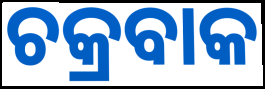
ଚକ୍ରବାକ